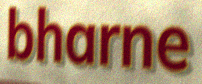
bharne